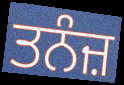
ਤਨੰਜ਼